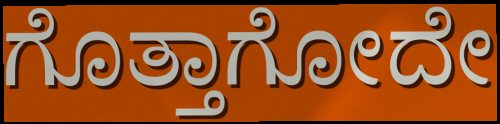
ಗೊತ್ತಾಗೋದೇ